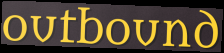
outbound